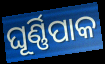
ଘୂର୍ଣ୍ଣିପାକ